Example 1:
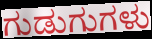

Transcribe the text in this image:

ಗುಡುಗುಗಳು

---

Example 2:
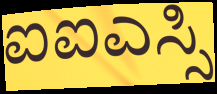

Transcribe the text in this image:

ಐಐಎಸ್ಸಿ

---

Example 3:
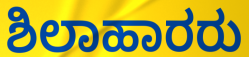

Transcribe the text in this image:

ಶಿಲಾಹಾರರು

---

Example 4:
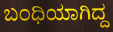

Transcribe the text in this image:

ಬಂಧಿಯಾಗಿದ್ದ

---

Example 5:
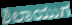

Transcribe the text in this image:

ಶಿಲಾಯುಗ